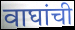
वाघांची